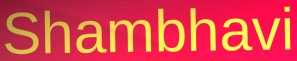
Shambhavi